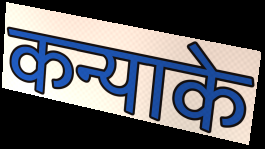
कन्याके